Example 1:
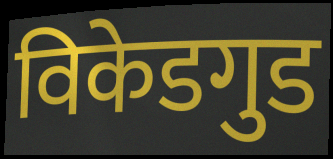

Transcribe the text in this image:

विकेडगुड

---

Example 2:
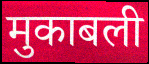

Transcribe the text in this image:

मुकाबली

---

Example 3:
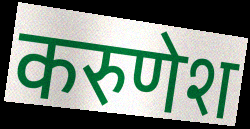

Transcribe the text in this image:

करुणेश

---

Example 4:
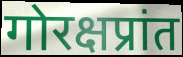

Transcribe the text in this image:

गोरक्षप्रांत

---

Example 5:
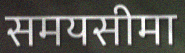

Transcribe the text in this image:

समयसीमा